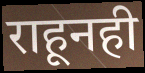
राहूनही